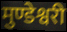
मुण्डेश्वरी